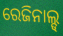
ରେଜିନାଲ୍ଡ୍